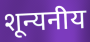
शून्यनीय